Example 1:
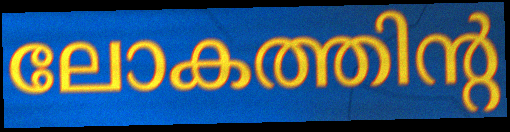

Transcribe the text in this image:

ലോകത്തിന്റ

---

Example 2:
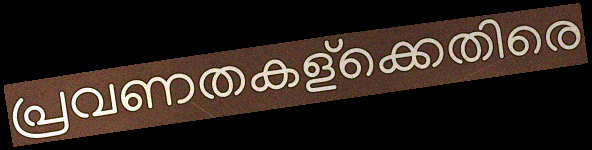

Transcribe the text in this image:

പ്രവണതകള്ക്കെതിരെ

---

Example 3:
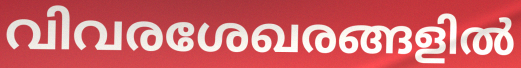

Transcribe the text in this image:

വിവരശേഖരങ്ങളിൽ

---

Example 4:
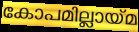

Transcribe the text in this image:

കോപമില്ലായ്മ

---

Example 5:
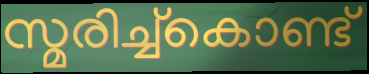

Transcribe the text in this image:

സ്മരിച്ച്കൊണ്ട്